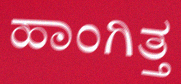
ಹಾಂಗಿತ್ತ